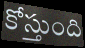
కోస్తుంది